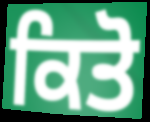
ਕਿਤੋ